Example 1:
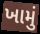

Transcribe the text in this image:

ખામું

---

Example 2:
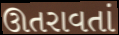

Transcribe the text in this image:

ઊતરાવતાં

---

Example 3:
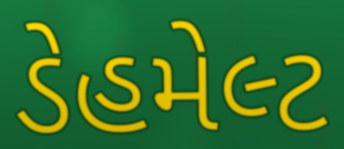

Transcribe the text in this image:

ડેહમેલ્ટ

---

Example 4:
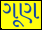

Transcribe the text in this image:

ગૂણ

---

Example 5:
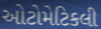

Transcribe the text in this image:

ઓટોમેટિકલી